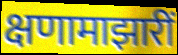
क्षणामाझारीं